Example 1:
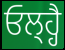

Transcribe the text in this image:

ਓਲ੍ਹ੍ਹੈ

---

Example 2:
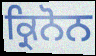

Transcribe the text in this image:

ਕ੍ਰਿਨੋਨ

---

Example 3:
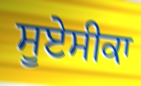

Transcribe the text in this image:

ਸੂਏਸੀਕਾ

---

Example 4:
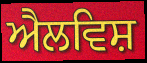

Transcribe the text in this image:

ਐਲਵਿਸ਼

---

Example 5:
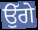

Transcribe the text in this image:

ਉੱਗੇ